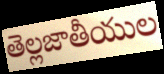
తెల్లజాతీయుల